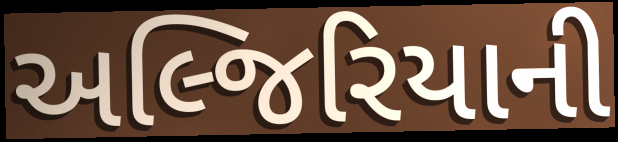
અલ્જિરિયાની